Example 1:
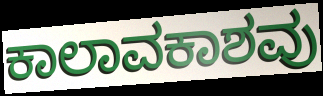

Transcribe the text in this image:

ಕಾಲಾವಕಾಶವು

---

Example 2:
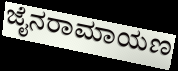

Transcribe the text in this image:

ಜೈನರಾಮಾಯಣ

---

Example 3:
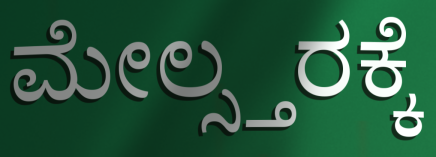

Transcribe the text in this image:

ಮೇಲ್ಸ್ತರಕ್ಕೆ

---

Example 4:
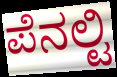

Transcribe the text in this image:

ಪೆನಲ್ಟಿ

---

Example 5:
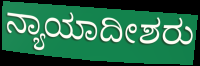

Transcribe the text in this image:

ನ್ಯಾಯಾದೀಶರು